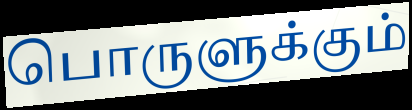
பொருளுக்கும்